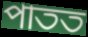
পাতত